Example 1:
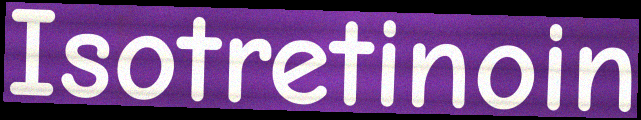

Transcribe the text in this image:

Isotretinoin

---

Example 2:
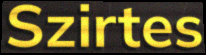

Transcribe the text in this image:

Szirtes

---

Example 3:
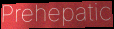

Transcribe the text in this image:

Prehepatic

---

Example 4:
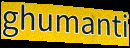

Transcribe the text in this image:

ghumanti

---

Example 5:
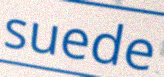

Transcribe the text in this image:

suede